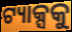
ଟ୍ୟାକ୍ସକୁ